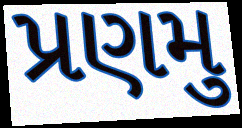
પ્રણમુ